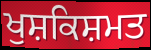
ਖੁਸ਼ਕਿਸ਼ਮਤ